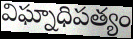
విఘ్నాధిపత్యం